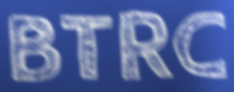
BTRC